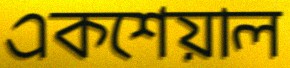
একশেয়াল